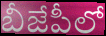
బీజేపీలో